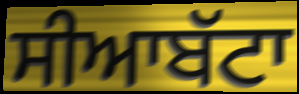
ਸੀਆਬੱਟਾ